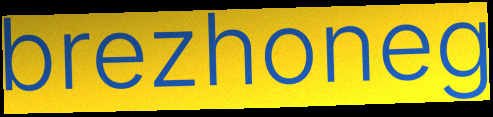
brezhoneg